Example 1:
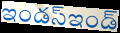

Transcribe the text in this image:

ఇండస్ఇండ్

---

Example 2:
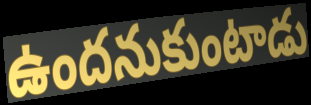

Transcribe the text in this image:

ఉందనుకుంటాడు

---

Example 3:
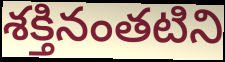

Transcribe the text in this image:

శక్తినంతటిని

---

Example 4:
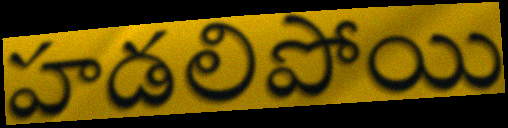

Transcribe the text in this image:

హడలిపోయి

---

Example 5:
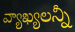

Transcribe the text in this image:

వ్యాఖ్యలన్నీ